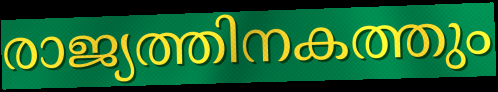
രാജ്യത്തിനകത്തും